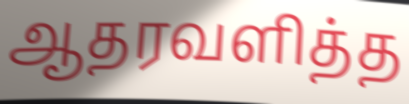
ஆதரவளித்த